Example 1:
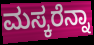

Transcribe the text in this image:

ಮಸ್ಕರೆನ್ನಾ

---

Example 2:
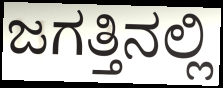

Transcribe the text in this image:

ಜಗತ್ತಿನಲ್ಲಿ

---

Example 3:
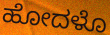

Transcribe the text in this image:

ಹೋದಳೊ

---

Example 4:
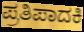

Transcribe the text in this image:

ಪ್ರತಿಪಾದಕಿ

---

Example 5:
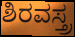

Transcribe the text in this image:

ಶಿರವಸ್ತ್ರ